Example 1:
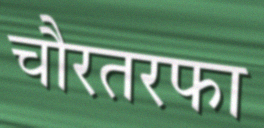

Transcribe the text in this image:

चौरतरफा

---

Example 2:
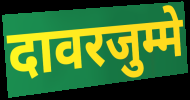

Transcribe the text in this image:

दावरजुम्मे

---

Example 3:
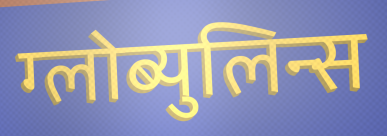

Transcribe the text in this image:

ग्लोब्युलिन्स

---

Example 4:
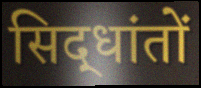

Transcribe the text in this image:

सिद्धांतों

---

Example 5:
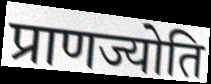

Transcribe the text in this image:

प्राणज्योति